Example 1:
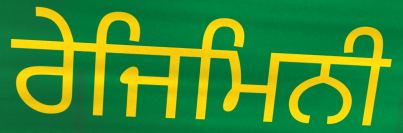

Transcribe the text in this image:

ਰੇਜਿਮਿਨੀ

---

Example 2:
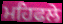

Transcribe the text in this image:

ਮਹਿਫਲੇ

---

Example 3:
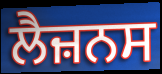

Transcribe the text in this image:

ਲੈਜ਼ਨਸ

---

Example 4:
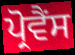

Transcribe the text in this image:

ਪ੍ਰੋਵੈਂਸ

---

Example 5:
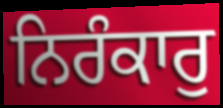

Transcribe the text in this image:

ਨਿਰੰਕਾਰੁ